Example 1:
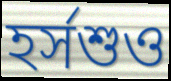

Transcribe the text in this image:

হর্সশুও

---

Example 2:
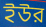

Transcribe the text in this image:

ইউর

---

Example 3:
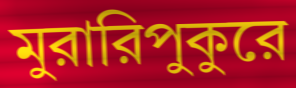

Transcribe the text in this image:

মুরারিপুকুরে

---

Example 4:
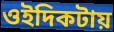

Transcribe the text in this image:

ওইদিকটায়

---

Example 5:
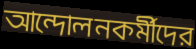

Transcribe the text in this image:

আন্দোলনকর্মীদের